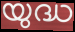
യുദ്ധ